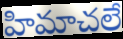
హిమాచలే